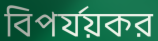
বিপর্যয়কর